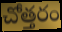
చోత్తరం